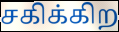
சகிக்கிற